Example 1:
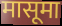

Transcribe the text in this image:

मासूमा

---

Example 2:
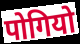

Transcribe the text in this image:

पोगियो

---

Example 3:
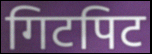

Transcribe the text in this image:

गिटपिट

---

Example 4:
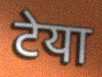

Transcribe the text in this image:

टेया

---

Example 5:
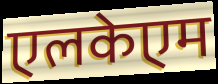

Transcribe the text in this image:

एलकेएम